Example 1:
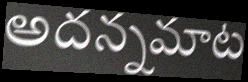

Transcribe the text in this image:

అదన్నమాట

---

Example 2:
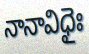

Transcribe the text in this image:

నానావిధైః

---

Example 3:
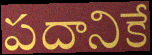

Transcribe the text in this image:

పదానికే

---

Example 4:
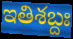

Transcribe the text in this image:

ఇతిశబ్దః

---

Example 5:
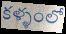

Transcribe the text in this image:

కళ్ళంలో